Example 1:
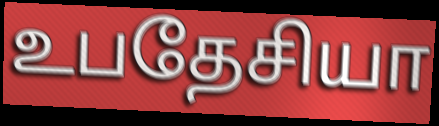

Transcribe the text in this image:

உபதேசியா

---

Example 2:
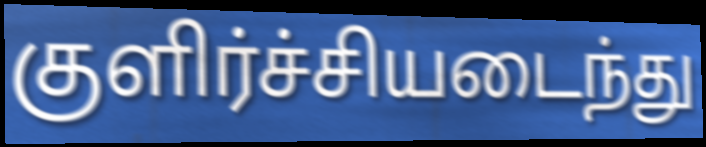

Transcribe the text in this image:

குளிர்ச்சியடைந்து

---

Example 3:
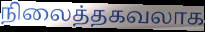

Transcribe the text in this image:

நிலைத்தகவலாக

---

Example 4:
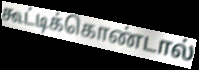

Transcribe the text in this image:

கூட்டிக்கொண்டால்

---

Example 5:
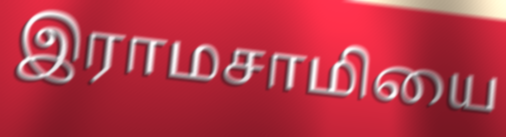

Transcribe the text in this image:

இராமசாமியை